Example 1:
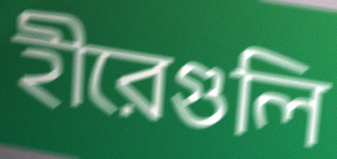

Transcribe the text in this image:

হীরেগুলি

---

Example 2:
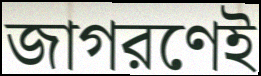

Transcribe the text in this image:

জাগরণেই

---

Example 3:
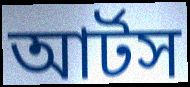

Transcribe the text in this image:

আর্টস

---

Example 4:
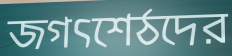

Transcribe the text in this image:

জগৎশেঠদের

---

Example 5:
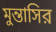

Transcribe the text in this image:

মুন্তাসির